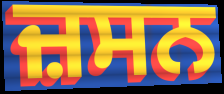
ਜ਼ਸਨ